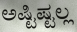
ಅಷ್ಟಿಷ್ಟಲ್ಲ